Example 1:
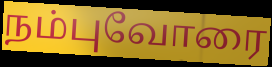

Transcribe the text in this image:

நம்புவோரை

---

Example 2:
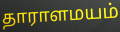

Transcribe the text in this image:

தாராளமயம்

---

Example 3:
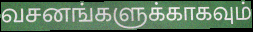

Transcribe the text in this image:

வசனங்களுக்காகவும்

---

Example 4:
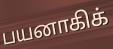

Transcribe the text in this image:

பயனாகிக்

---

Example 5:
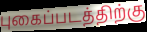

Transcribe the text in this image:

புகைப்படத்திற்கு